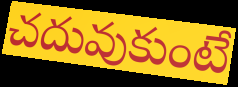
చదువుకుంటే